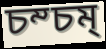
চম্চম্